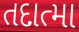
તદાત્મા